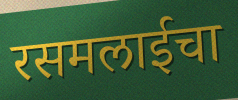
रसमलाईचा